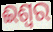
ଈଶ୍ବର